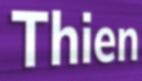
Thien